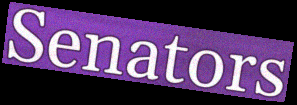
Senators